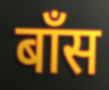
बॉंस